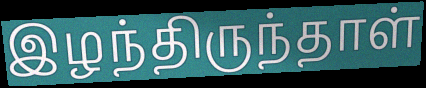
இழந்திருந்தாள்